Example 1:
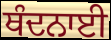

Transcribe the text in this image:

ਥੰਦਨਾਈ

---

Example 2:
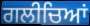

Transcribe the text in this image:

ਗਲੀਚਿਆਂ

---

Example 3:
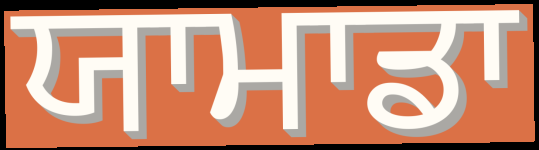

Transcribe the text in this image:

ਯਾਮਾਡਾ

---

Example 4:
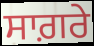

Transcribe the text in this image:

ਸਾਗ਼ਰੇ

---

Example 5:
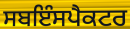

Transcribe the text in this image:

ਸਬਇੰਸਪੈਕਟਰ